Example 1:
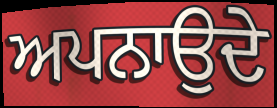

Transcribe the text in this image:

ਅਪਨਾਉਦੇ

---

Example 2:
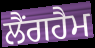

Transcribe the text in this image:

ਲੈਂਗਹੈਮ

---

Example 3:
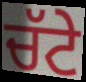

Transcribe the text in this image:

ਚੱਟੇ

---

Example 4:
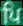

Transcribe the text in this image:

ਪਿ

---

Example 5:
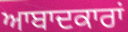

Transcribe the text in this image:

ਆਬਾਦਕਾਰਾਂ